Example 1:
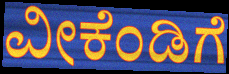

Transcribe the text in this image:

ವೀಕೆಂಡಿಗೆ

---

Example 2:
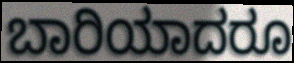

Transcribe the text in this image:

ಬಾರಿಯಾದರೂ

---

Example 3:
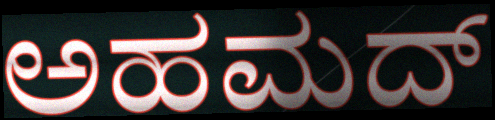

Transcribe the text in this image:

ಅಹಮದ್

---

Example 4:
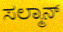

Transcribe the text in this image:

ಸಲ್ಮಾನ್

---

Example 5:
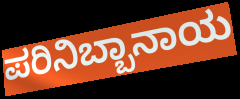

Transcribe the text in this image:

ಪರಿನಿಬ್ಬಾನಾಯ